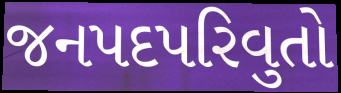
જનપદપરિવુતો